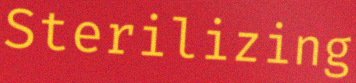
Sterilizing